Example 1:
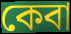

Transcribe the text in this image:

কেবা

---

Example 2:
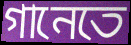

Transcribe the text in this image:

গানেতে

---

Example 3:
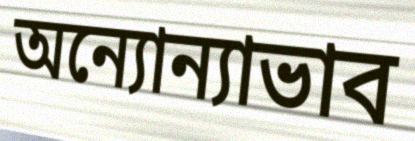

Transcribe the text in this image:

অন্যোন্যাভাব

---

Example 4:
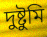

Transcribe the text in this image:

দুষ্টুমি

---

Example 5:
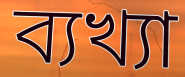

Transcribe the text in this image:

ব্যখ্যা